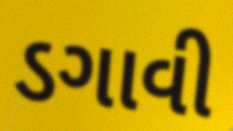
ડગાવી